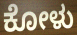
ಕೋಳು